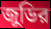
জুডির